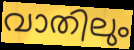
വാതിലും